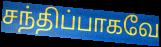
சந்திப்பாகவே